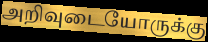
அறிவுடையோருக்கு